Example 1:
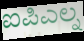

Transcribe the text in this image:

ಐಪಿಎಲ್ನ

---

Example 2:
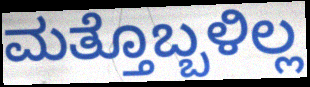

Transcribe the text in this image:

ಮತ್ತೊಬ್ಬಳಿಲ್ಲ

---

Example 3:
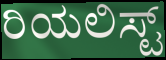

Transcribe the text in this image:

ರಿಯಲಿಸ್ಟ್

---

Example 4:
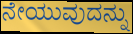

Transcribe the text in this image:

ನೇಯುವುದನ್ನು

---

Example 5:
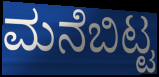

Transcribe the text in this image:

ಮನೆಬಿಟ್ಟ